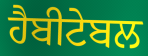
ਹੈਬੀਟੇਬਲ